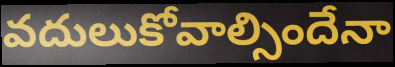
వదులుకోవాల్సిందేనా